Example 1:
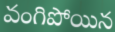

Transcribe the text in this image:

వంగిపోయిన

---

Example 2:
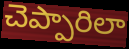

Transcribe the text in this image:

చెప్పారిలా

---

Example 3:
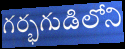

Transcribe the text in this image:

గర్భగుడిలోని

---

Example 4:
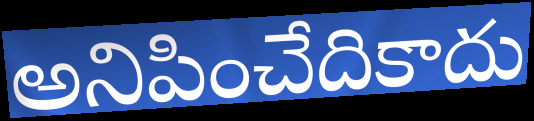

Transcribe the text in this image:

అనిపించేదికాదు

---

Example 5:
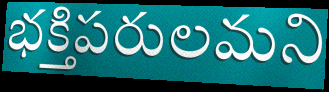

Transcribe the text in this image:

భక్తిపరులమని